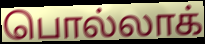
பொல்லாக்